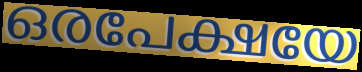
ഒരപേക്ഷയേ